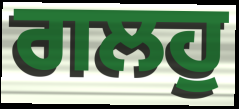
ਗਲਹੁ